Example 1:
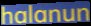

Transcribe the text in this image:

halanun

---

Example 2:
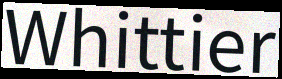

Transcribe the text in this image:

Whittier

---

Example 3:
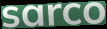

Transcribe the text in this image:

sarco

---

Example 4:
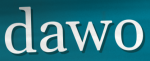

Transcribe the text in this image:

dawo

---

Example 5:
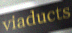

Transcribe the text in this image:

viaducts